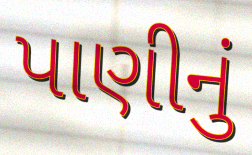
પાણીનું